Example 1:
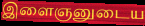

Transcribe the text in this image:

இளைஞனுடைய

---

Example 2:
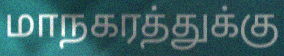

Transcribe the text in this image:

மாநகரத்துக்கு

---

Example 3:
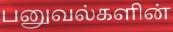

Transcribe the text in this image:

பனுவல்களின்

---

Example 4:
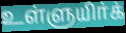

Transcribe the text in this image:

உள்ளுயிர்க்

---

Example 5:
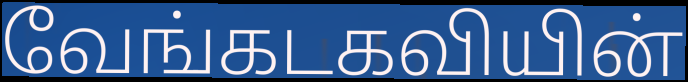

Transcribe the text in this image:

வேங்கடகவியின்